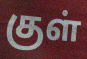
குள்